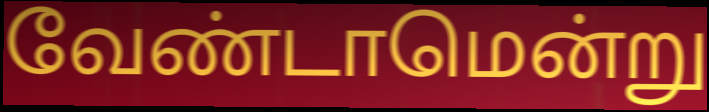
வேண்டாமென்று